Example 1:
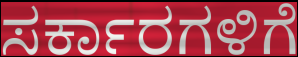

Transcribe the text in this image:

ಸರ್ಕಾರಗಳಿಗೆ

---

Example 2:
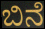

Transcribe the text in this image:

ಬಿನೆ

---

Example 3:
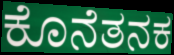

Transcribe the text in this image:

ಕೊನೆತನಕ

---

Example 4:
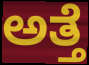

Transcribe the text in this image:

ಅತ್ತೆ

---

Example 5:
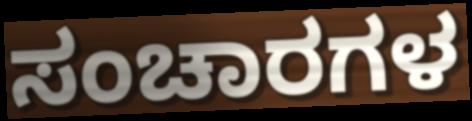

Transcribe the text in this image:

ಸಂಚಾರಗಳ